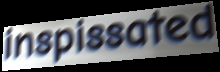
inspissated